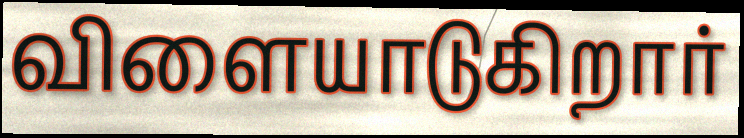
விளையாடுகிறார்